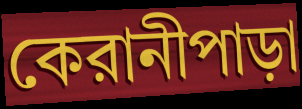
কেরানীপাড়া